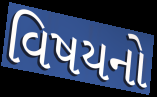
વિષયનો